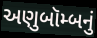
અણુબૉમ્બનું